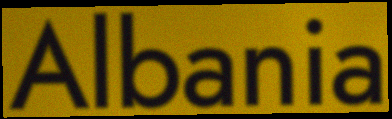
Albania